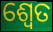
ଶ୍ଵେତ